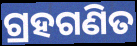
ଗ୍ରହଗଣିତ